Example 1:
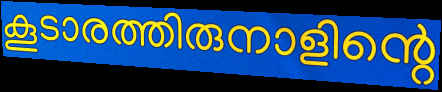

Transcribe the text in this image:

കൂടാരത്തിരുനാളിന്റെ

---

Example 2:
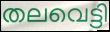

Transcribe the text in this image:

തലവെട്ടി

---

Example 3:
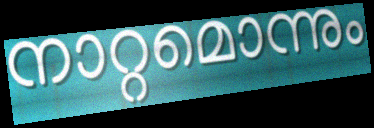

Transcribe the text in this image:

നാറ്റമൊന്നും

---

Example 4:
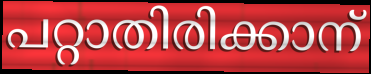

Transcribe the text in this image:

പറ്റാതിരിക്കാന്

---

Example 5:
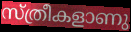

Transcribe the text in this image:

സ്ത്രീകളാണു